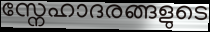
സ്നേഹാദരങ്ങളുടെ